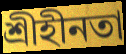
শ্রীহীনতা